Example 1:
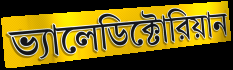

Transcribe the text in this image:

ভ্যালেডিক্টোরিয়ান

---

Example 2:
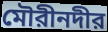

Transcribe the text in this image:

মৌরীনদীর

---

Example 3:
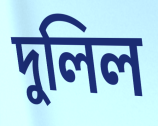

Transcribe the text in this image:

দুলিল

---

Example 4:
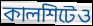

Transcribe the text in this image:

কালশিটেও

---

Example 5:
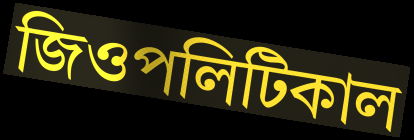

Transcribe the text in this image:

জিওপলিটিকাল